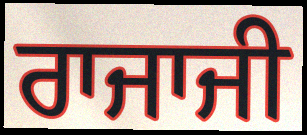
ਰਾਜਾਜੀ